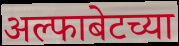
अल्फाबेटच्या